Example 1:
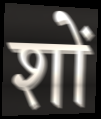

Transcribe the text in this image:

शों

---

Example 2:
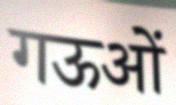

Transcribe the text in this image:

गऊओं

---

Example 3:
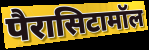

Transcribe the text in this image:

पैरासिटामॉल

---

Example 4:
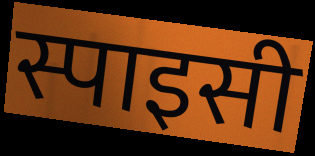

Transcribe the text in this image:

स्पाइसी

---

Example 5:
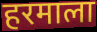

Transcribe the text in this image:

हरमाला